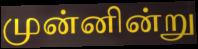
முன்னின்று